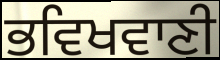
ਭਵਿਖਵਾਣੀ